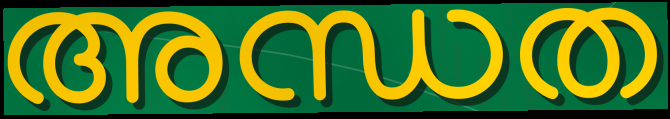
അന്ധത